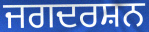
ਜਗਦਰਸ਼ਨ